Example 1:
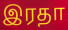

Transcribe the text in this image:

இரதா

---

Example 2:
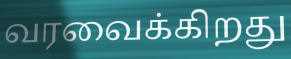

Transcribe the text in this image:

வரவைக்கிறது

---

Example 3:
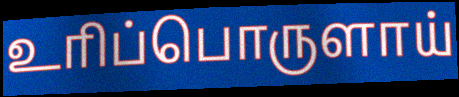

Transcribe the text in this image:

உரிப்பொருளாய்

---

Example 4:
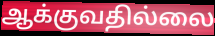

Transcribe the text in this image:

ஆக்குவதில்லை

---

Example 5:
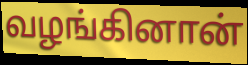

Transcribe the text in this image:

வழங்கினான்